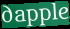
dapple